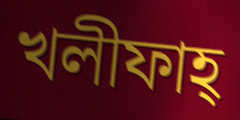
খলীফাহ্